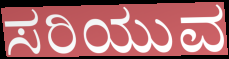
ಸರಿಯುವ